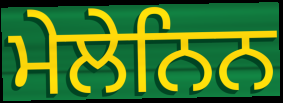
ਮੇਲੇਨਿਨ